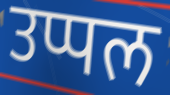
उप्पल